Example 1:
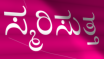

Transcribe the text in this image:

ಸ್ಮರಿಸುತ್ತ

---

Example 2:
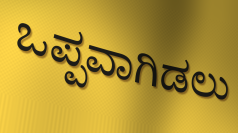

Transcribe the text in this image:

ಒಪ್ಪವಾಗಿಡಲು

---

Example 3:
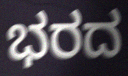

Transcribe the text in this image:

ಭರದ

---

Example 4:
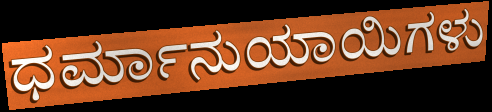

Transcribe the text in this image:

ಧರ್ಮಾನುಯಾಯಿಗಳು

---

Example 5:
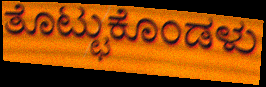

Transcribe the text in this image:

ತೊಟ್ಟುಕೊಂಡಳು